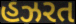
હઝરત